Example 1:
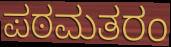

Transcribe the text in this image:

ಪಠಮತರಂ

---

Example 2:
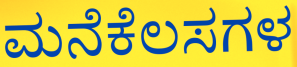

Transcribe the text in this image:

ಮನೆಕೆಲಸಗಳ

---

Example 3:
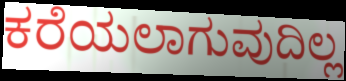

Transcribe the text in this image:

ಕರೆಯಲಾಗುವುದಿಲ್ಲ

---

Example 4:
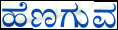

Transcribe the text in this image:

ಹೆಣಗುವ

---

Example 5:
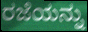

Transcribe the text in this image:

ರಜೆಯನ್ನು